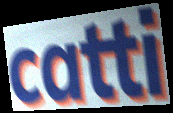
catti